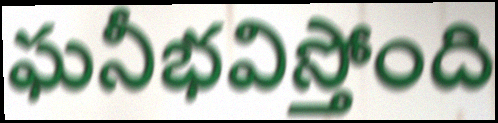
ఘనీభవిస్తోంది